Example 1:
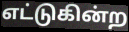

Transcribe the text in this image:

எட்டுகின்ற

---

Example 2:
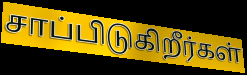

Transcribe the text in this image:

சாப்பிடுகிறீர்கள்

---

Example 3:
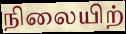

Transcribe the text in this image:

நிலையிற்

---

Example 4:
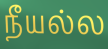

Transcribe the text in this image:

நீயல்ல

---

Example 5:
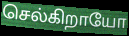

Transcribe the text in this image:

செல்கிறாயோ